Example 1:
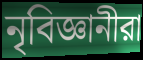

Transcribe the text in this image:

নৃবিজ্ঞানীরা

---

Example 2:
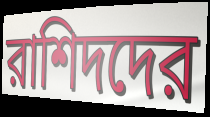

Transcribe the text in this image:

রাশিদদের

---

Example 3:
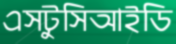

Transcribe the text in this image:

এসটুসিআইডি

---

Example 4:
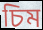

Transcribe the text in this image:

চিম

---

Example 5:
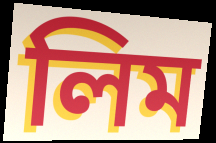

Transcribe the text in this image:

লিম